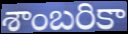
శాంబరికా